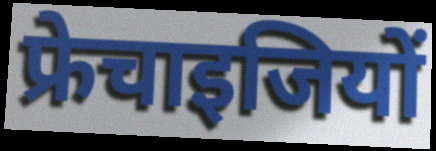
फ्रेचाइजियों